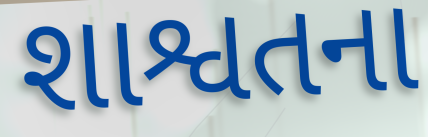
શાશ્વતના